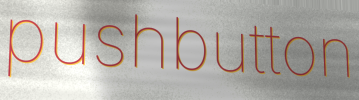
pushbutton